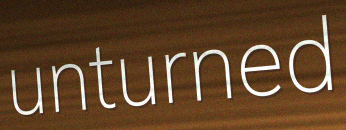
unturned